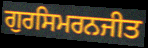
ਗੁਰਸਿਮਰਨਜੀਤ